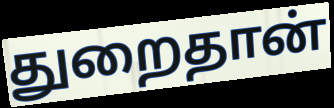
துறைதான்